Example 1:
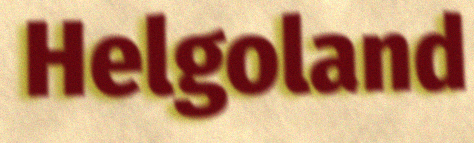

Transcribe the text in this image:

Helgoland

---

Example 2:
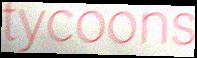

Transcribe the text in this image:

tycoons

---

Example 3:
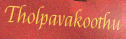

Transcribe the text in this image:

Tholpavakoothu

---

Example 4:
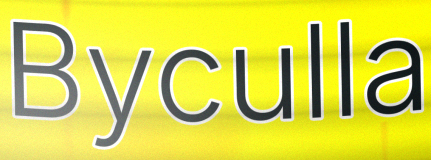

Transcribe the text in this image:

Byculla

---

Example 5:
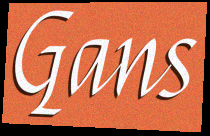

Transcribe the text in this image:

Gans